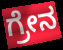
ಗ್ರೇನ